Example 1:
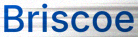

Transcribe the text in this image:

Briscoe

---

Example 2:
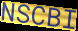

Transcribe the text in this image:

NSCBI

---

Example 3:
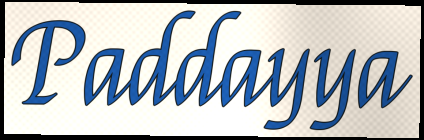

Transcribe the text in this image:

Paddayya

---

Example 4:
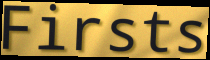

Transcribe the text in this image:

Firsts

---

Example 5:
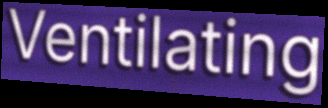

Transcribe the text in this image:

Ventilating